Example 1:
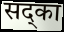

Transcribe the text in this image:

सद्का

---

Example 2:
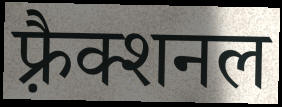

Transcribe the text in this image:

फ़्रैक्शनल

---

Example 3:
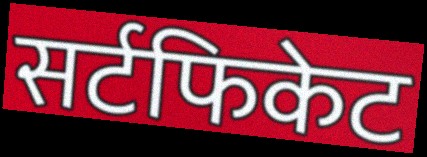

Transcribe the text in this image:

सर्टफिकेट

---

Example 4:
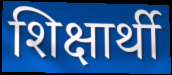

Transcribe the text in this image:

शिक्षार्थी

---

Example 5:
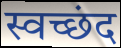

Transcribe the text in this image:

स्वच्छंद